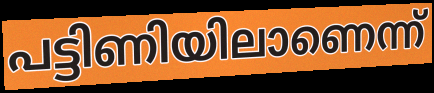
പട്ടിണിയിലാണെന്ന്